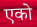
एको